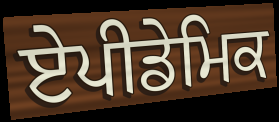
ਏਪੀਡੇਮਿਕ